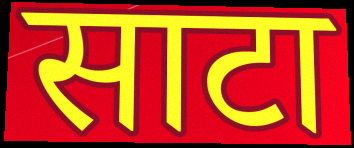
साटा